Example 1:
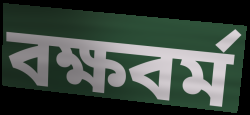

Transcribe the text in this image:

বক্ষবর্ম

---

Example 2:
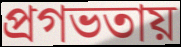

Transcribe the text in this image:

প্রগভতায়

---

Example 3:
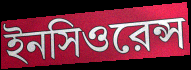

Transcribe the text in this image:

ইনসিওরেন্স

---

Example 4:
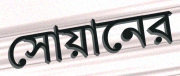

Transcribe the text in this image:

সোয়ানের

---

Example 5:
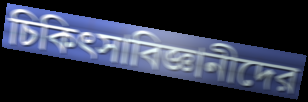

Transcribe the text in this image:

চিকিৎসাবিজ্ঞানীদের